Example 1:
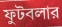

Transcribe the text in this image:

ফুটবলার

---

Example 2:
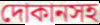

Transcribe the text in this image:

দোকানসহ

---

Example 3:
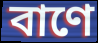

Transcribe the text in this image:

বাণে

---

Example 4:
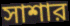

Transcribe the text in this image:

সাশার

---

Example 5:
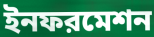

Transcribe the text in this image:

ইনফরমেশন